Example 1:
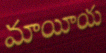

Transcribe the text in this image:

మాయీయ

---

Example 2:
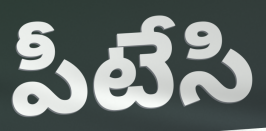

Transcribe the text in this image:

పీటేసి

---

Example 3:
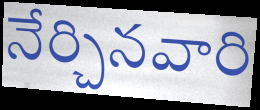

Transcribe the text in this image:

నేర్చినవారి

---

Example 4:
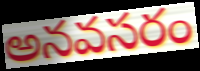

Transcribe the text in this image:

అనవసరం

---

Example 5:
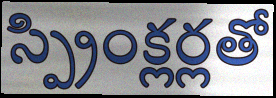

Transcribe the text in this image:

స్ప్రింక్లర్లతో